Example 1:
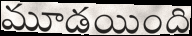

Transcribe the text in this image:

మూడయింది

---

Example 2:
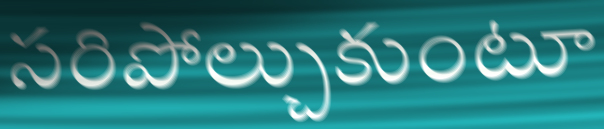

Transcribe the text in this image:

సరిపోల్చుకుంటూ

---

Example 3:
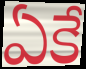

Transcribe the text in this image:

ఏకే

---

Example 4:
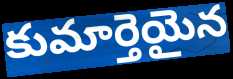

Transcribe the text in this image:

కుమార్తెయైన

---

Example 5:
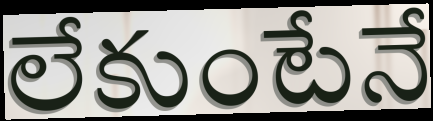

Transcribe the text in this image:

లేకుంటేనే